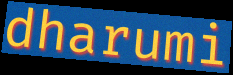
dharumi